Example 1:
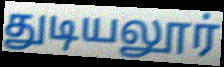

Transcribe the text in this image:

துடியலூர்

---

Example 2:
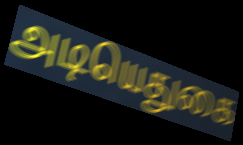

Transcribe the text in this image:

அடியெதுகை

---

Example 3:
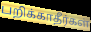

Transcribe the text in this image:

பறிக்காதீர்கள்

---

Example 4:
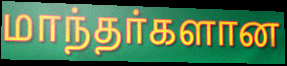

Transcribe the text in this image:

மாந்தர்களான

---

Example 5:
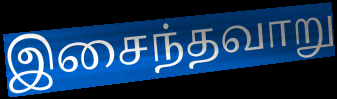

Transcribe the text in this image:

இசைந்தவாறு